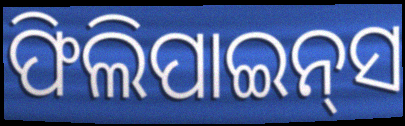
ଫିଲିପାଇନ୍‍ସ